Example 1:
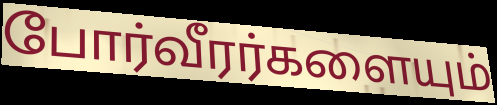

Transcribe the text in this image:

போர்வீரர்களையும்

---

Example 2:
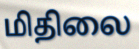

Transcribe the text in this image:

மிதிலை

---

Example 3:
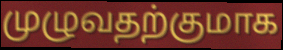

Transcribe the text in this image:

முழுவதற்குமாக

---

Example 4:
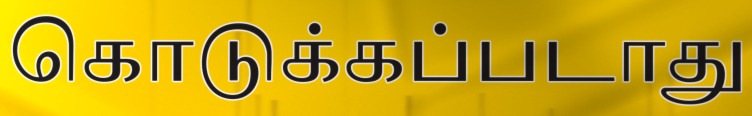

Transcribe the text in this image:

கொடுக்கப்படாது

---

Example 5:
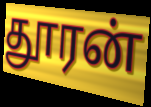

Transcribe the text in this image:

தூரன்